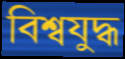
বিশ্বযুদ্ধ